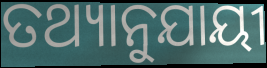
ତଥ୍ୟାନୁଯାୟୀ